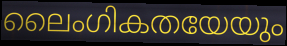
ലൈംഗികതയേയും